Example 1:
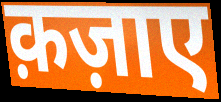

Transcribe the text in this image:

क़ज़ाए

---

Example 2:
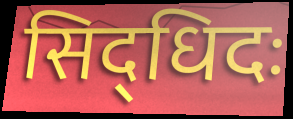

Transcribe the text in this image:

सिद्धिदः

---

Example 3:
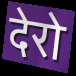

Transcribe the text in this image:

देरो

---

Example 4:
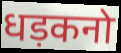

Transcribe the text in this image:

धड़कनो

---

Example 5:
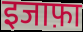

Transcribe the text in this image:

इजाफ़ा